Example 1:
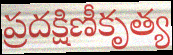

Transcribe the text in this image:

ప్రదక్షిణీకృత్య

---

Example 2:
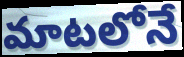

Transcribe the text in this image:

మాటలోనే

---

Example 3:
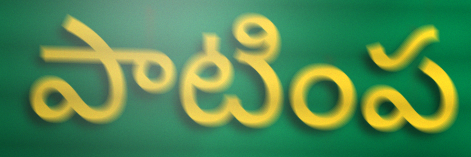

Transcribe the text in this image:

పాటింప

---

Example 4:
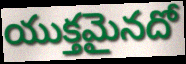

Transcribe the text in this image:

యుక్తమైనదో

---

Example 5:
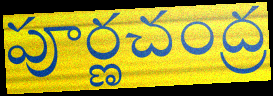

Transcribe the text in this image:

పూర్ణచంద్ర